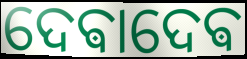
ଦେଵାଦେଵ